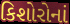
કિશોરોનાં